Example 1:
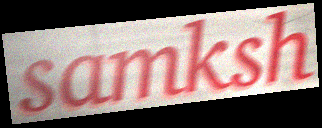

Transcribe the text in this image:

samksh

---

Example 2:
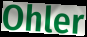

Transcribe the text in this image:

Ohler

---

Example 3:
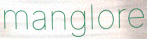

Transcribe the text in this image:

manglore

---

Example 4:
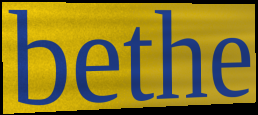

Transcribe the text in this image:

bethe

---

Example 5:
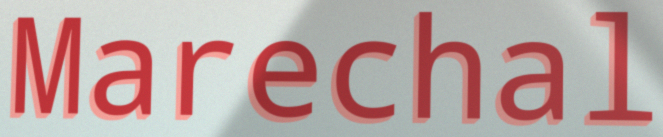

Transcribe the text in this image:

Marechal